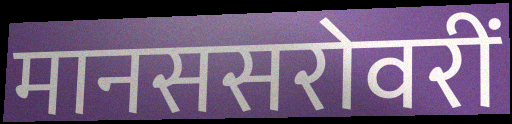
मानससरोवरीं